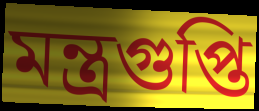
মন্ত্রগুপ্তি